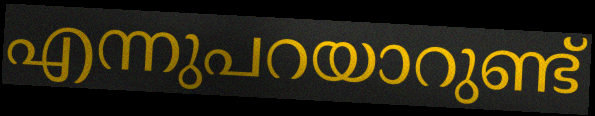
എന്നുപറയാറുണ്ട്